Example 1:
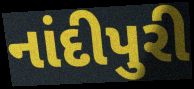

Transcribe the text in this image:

નાંદીપુરી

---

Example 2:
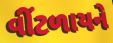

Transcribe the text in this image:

વીંટળાયને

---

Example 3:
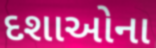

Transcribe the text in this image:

દશાઓના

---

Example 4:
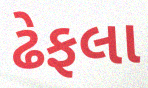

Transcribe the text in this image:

ઢેફલા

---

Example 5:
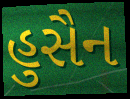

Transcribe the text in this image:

હુસૈન